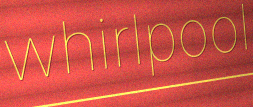
whirlpool